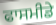
ਫਾਸਮੀਡੇ